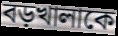
বড়খালাকে